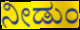
ನೀಡುಂ